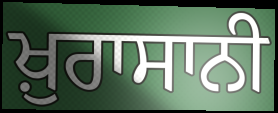
ਖ਼ੁਰਾਸਾਨੀ